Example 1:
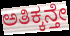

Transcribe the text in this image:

ಅತಿಕ್ಕನ್ತೇ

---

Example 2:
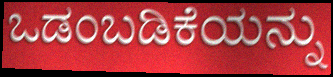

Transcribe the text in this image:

ಒಡಂಬಡಿಕೆಯನ್ನು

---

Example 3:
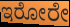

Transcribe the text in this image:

ಇರೋರೇ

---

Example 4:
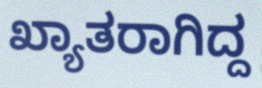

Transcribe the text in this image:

ಖ್ಯಾತರಾಗಿದ್ದ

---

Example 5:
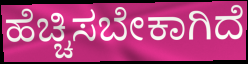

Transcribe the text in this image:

ಹೆಚ್ಚಿಸಬೇಕಾಗಿದೆ